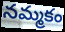
నమ్మకం